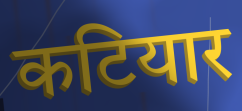
कटियार